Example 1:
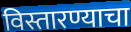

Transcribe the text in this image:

विस्तारण्याचा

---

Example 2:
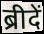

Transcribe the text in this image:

ब्रीदें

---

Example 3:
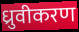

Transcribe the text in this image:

ध्रुवीकरण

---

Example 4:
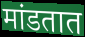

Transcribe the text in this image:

मांडतात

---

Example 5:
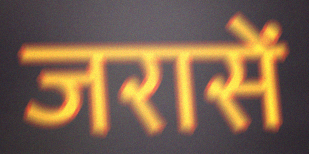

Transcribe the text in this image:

जरासें